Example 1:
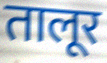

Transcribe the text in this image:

तालूर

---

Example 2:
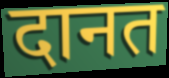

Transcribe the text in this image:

दानत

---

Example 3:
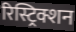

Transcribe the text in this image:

रिस्ट्रिक्शन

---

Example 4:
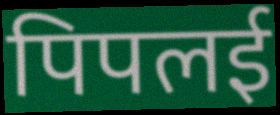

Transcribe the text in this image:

पिपलई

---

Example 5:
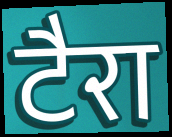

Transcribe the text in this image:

टैरा